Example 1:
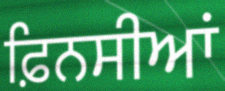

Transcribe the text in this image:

ਫ਼ਿਨਸੀਆਂ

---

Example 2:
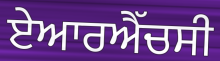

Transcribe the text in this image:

ਏਆਰਐੱਚਸੀ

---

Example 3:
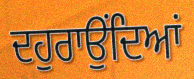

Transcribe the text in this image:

ਦਹੁਰਾਉਂਦਿਆਂ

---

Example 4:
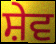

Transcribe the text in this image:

ਸ਼ੇਵ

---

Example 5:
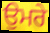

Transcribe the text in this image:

ਉਮਰੇ